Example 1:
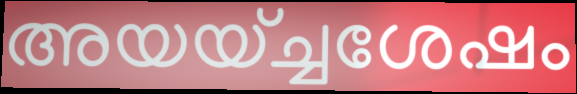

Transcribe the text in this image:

അയയ്ച്ചശേഷം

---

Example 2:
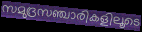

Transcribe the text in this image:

സമുദ്രസഞ്ചാരികളിലൂടെ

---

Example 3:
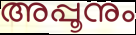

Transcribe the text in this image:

അപ്പൂനും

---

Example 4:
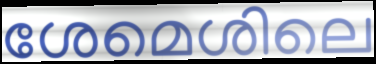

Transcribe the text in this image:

ശേമെശിലെ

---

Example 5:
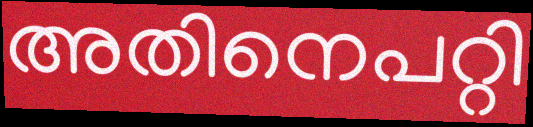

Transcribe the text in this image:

അതിനെപറ്റി